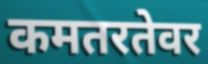
कमतरतेवर